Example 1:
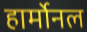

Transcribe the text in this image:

हार्मोनल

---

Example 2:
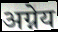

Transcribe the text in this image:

अग्नेय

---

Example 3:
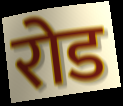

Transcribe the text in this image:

रोड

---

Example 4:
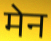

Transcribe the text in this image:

मेन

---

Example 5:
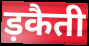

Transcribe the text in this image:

ड़कैती